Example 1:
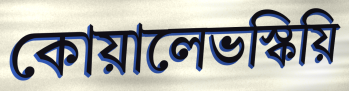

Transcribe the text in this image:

কোয়ালেভস্কিয়ি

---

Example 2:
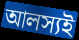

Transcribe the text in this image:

আলস্যই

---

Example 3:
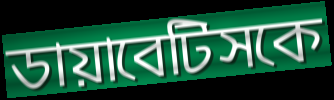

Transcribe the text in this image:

ডায়াবেটিসকে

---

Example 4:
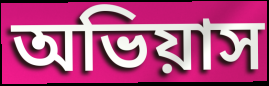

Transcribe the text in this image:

অভিয়াস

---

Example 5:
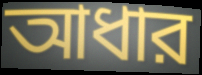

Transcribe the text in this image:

আধার